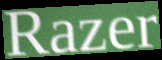
Razer